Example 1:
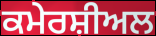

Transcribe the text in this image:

ਕਮੇਰਸ਼ੀਅਲ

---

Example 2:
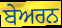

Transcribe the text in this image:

ਬੇਅਰਨ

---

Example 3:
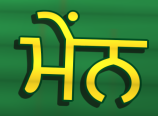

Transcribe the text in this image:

ਮੇਂਨ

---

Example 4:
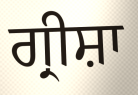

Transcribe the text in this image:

ਗ੍ਰੀਸ਼ਾ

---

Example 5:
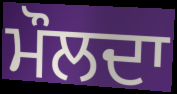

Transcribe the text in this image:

ਮੌਲਦਾ